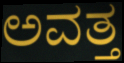
ಅವತ್ತ